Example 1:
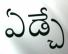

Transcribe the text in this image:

ఏడ్చే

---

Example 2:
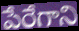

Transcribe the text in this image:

పేరేగాని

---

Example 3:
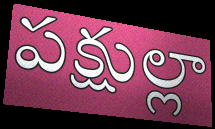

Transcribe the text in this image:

పక్షుల్లా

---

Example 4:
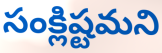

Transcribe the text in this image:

సంక్లిష్టమని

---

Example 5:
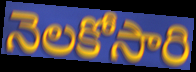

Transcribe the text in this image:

నెలకోసారి